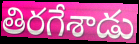
తిరగేశాడు